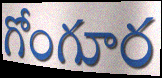
గోంగూర